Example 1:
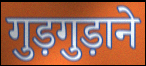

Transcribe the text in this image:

गुड़गुड़ाने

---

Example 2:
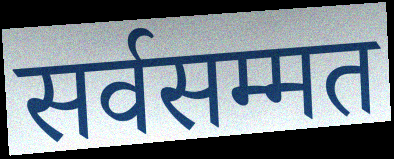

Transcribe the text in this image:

सर्वसम्मत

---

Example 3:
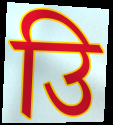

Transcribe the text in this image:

उि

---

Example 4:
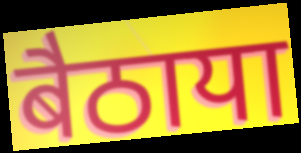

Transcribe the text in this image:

बैठाया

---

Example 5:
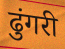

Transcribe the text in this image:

ढुंगरी